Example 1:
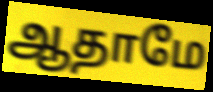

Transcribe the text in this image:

ஆதாமே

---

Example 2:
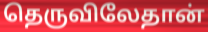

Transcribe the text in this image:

தெருவிலேதான்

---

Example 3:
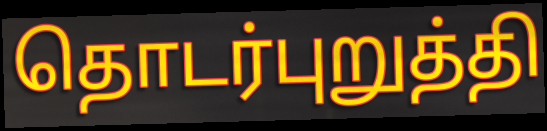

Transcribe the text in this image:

தொடர்புறுத்தி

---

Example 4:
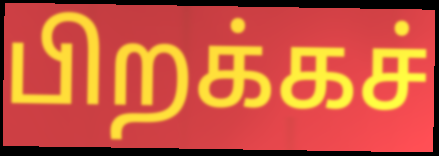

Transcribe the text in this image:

பிறக்கச்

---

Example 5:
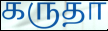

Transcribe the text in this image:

கருதா